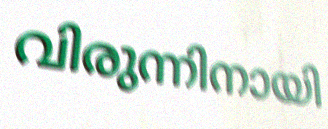
വിരുന്നിനായി